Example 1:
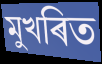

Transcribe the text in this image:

মুখৰিত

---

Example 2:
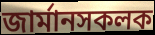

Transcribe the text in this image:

জাৰ্মানসকলক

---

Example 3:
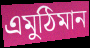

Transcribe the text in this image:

এমুঠিমান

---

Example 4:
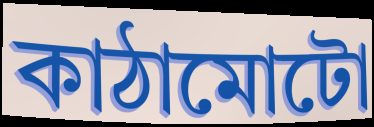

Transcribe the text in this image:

কাঠামোটো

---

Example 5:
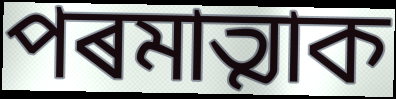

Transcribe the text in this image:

পৰমাত্মাক